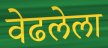
वेढलेला